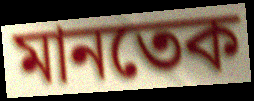
মানতেক